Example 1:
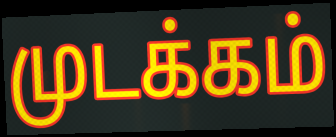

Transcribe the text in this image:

முடக்கம்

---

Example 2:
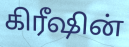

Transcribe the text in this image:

கிரீஷின்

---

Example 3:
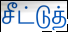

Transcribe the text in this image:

சீட்டுத்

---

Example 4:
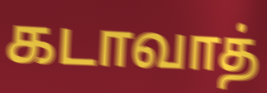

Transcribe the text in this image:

கடாவாத்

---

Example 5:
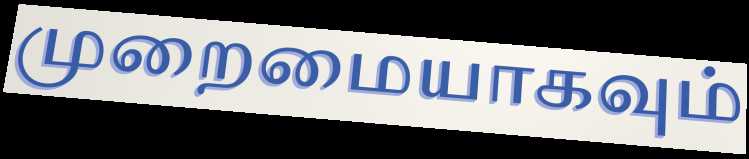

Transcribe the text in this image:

முறைமையாகவும்